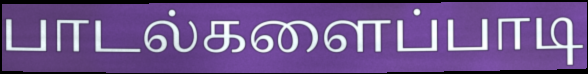
பாடல்களைப்பாடி